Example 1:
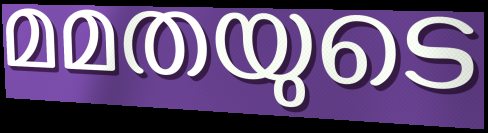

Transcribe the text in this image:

മമതയുടെ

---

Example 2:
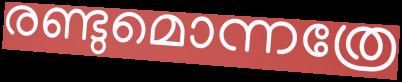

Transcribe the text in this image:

രണ്ടുമൊന്നത്രേ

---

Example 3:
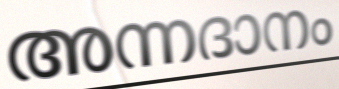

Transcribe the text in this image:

അന്നദാനം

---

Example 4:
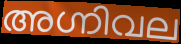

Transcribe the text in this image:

അഗ്നിവല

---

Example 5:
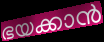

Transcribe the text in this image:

ഭയക്കാൻ